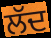
ਲੱਦ